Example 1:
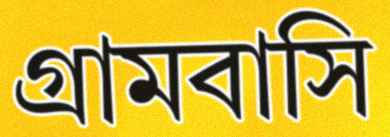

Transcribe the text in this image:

গ্রামবাসি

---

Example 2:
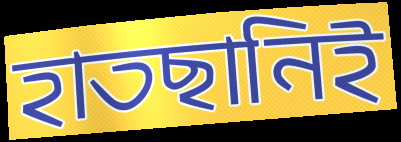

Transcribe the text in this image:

হাতছানিই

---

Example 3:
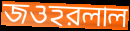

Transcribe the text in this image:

জওহরলাল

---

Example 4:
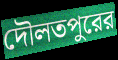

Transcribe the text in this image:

দৌলতপুরের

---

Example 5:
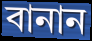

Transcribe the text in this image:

বানান